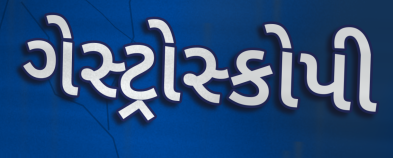
ગેસ્ટ્રોસ્કોપી